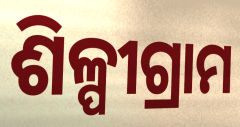
ଶିଳ୍ପୀଗ୍ରାମ